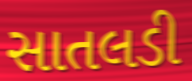
સાતલડી